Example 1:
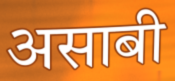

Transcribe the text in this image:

असाबी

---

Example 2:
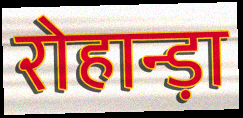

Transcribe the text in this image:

रोहान्ड़ा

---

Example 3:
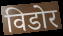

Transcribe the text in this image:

विडोर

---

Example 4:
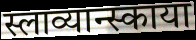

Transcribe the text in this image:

स्लाव्यान्स्काया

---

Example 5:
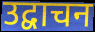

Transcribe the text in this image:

उद्वाचन